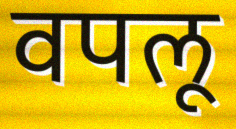
वपलू